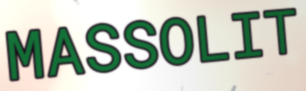
MASSOLIT